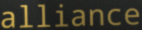
alliance